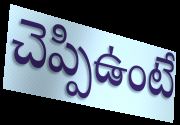
చెప్పిఉంటే